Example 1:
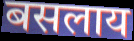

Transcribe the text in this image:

बसलाय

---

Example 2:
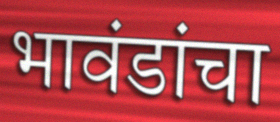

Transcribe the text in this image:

भावंडांचा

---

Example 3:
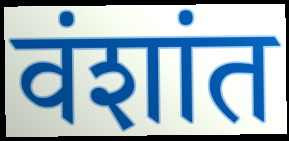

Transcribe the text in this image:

वंशांत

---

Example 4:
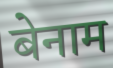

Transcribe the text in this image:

बेनाम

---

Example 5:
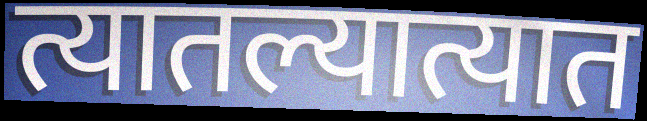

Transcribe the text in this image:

त्यातल्यात्यात